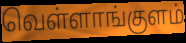
வெள்ளாங்குளம்